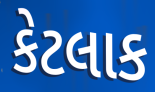
કેટલાક